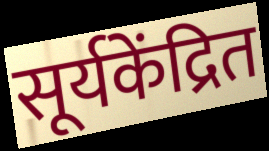
सूर्यकेंद्रित